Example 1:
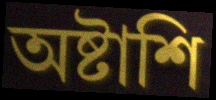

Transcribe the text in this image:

অষ্টাশি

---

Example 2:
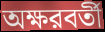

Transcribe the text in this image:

অক্ষরবর্তী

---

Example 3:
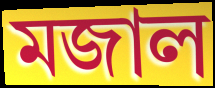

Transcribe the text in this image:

মজাল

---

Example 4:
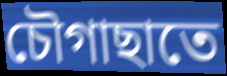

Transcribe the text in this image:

চৌগাছাতে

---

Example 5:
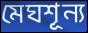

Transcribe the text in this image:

মেঘশূন্য